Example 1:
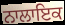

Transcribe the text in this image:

ਨਾਲਾਇਕ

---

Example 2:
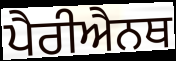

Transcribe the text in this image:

ਪੈਰੀਐਨਥ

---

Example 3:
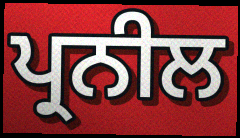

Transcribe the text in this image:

ਪ੍ਰਨੀਲ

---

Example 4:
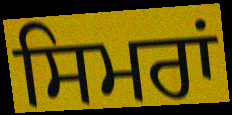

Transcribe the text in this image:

ਸਿਮਰਾਂ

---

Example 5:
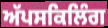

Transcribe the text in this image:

ਅੱਪਸਕਿਲਿੰਗ